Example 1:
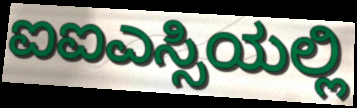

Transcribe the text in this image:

ಐಐಎಸ್ಸಿಯಲ್ಲಿ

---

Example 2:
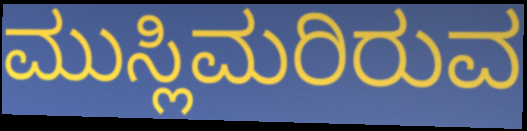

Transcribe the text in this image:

ಮುಸ್ಲಿಮರಿರುವ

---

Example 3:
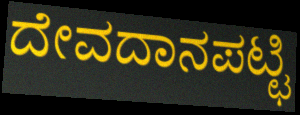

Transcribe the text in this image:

ದೇವದಾನಪಟ್ಟಿ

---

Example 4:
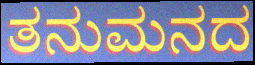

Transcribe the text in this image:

ತನುಮನದ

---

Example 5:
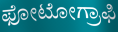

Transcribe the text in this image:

ಫೋಟೋಗ್ರಾಫಿ